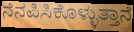
ನೆನಪಿಸಿಕೊಳ್ಳುತ್ತಾನೆ